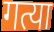
गत्या